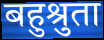
बहुश्रुता